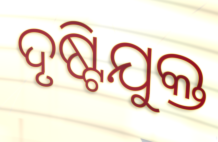
ଦୃଷ୍ଟିଯୁକ୍ତ